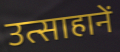
उत्साहानें